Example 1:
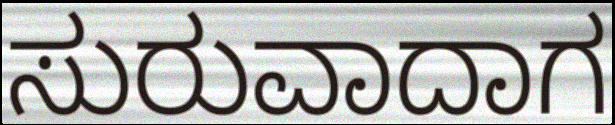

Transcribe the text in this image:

ಸುರುವಾದಾಗ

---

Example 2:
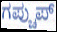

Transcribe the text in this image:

ಗಪ್ಚುಪ್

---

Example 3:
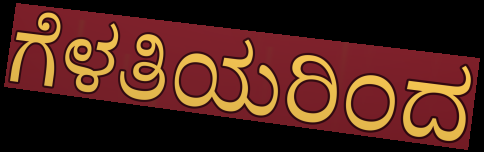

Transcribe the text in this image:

ಗೆಳತಿಯರಿಂದ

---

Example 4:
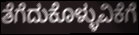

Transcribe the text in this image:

ತೆಗೆದುಕೊಳ್ಳುವಿಕೆಗೆ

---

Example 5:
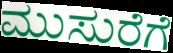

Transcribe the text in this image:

ಮುಸುರೆಗೆ